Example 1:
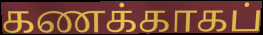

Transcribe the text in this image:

கணக்காகப்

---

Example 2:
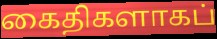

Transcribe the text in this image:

கைதிகளாகப்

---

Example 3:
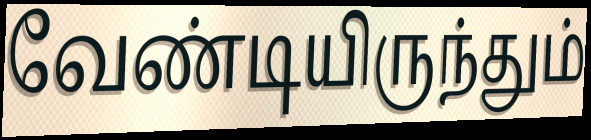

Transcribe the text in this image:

வேண்டியிருந்தும்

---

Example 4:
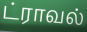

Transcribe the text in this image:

ட்ராவல்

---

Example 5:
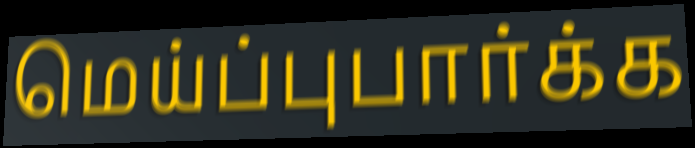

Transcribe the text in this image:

மெய்ப்புபார்க்க